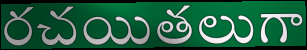
రచయితలుగా